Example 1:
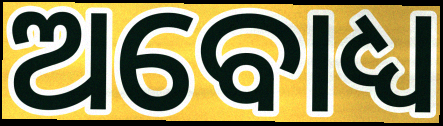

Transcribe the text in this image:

ଅବୋଧ୍ୟ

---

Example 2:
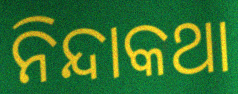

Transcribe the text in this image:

ନିନ୍ଦାକଥା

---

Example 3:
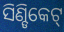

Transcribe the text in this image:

ସିଣ୍ଡିକେଟ୍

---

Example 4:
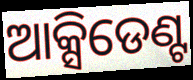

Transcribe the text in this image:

ଆକ୍ସିଡେଣ୍ଟ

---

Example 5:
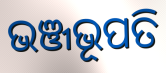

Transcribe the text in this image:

ଭଞ୍ଜଭୂପତି